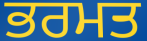
ਭਰਮਤ